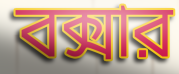
বক্সার